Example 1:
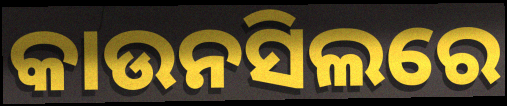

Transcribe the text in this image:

କାଉନସିଲରେ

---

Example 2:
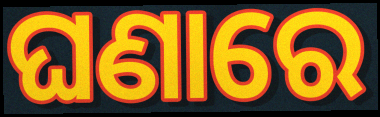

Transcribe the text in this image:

ଘଣାରେ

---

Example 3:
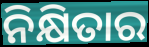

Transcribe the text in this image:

ନିକ୍ଷିତାର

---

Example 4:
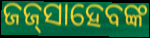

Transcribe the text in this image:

ଜଜ୍‌ସାହେବଙ୍କ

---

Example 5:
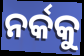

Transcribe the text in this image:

ନର୍କକୁ